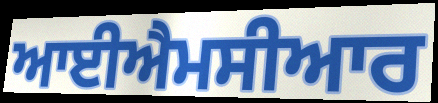
ਆਈਐਮਸੀਆਰ